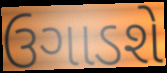
ઉગાડશે